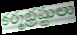
కర్మభ్రష్టులు